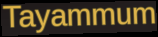
Tayammum